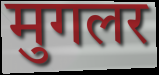
मुगलर